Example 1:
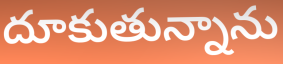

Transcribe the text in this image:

దూకుతున్నాను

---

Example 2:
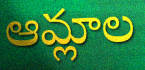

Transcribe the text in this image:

ఆమ్లాల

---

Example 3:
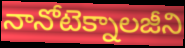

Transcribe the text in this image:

నానోటెక్నాలజీని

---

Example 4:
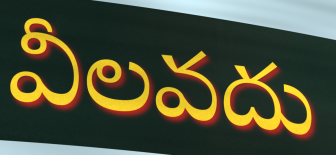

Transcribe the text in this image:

వీలవదు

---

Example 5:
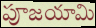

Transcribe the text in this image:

పూజయామి